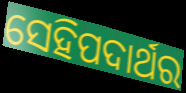
ସେହିପଦାର୍ଥର